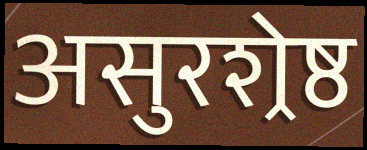
असुरश्रेष्ठ